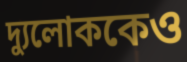
দ্যুলোককেও